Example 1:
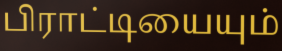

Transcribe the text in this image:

பிராட்டியையும்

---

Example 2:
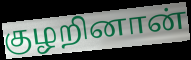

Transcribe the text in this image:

குழறினான்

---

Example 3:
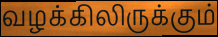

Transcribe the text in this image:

வழக்கிலிருக்கும்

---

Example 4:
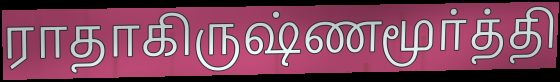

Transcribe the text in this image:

ராதாகிருஷ்ணமூர்த்தி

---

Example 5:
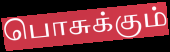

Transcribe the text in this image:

பொசுக்கும்